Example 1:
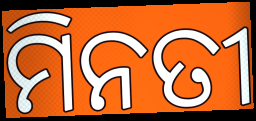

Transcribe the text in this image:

ମିନତୀ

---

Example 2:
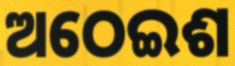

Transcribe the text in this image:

ଅଠେଇଶ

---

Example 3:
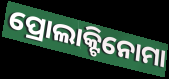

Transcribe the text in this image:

ପ୍ରୋଲାକ୍ଟିନୋମା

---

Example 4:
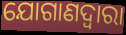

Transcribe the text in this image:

ଯୋଗାଣଦ୍ଵାରା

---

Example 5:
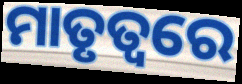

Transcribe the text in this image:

ମାତୃତ୍ୱରେ